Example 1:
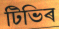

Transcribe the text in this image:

টিভিৰ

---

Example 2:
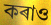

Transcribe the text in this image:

কৰাও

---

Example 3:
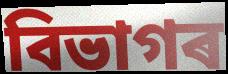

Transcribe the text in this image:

বিভাগৰ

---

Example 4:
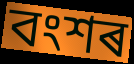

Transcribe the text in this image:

বংশৰ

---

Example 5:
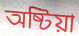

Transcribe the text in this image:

অষ্টিয়া